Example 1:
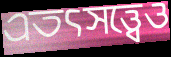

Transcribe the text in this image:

এতৎসত্ত্বেও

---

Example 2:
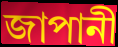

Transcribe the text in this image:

জাপানী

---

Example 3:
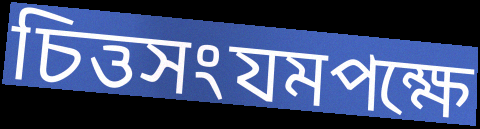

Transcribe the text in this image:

চিত্তসংযমপক্ষে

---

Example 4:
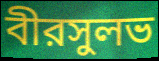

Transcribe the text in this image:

বীরসুলভ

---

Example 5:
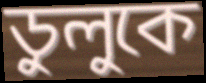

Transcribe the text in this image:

ডুলুকে